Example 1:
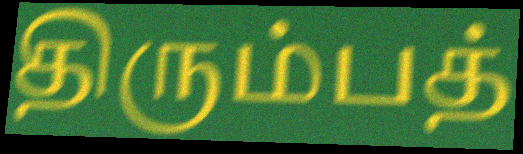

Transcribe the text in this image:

திரும்பத்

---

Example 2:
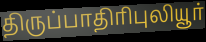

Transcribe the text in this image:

திருப்பாதிரிபுலியூர்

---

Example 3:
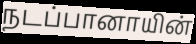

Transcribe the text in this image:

நடப்பானாயின்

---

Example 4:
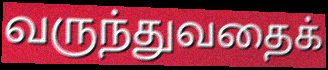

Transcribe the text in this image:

வருந்துவதைக்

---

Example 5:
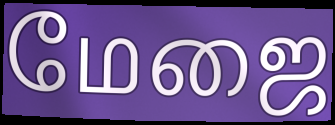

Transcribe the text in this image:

மேஜை